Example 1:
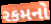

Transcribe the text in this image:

રકમનો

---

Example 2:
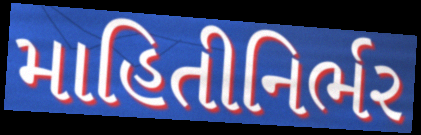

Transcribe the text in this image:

માહિતીનિર્ભર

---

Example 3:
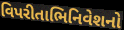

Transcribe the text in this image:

વિપરીતાભિનિવેશનો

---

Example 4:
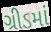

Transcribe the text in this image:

ગ્રીડમાં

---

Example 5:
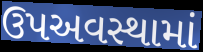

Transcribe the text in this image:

ઉપઅવસ્થામાં